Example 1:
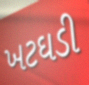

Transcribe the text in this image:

ખટઘડી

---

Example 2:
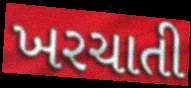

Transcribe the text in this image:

ખરચાતી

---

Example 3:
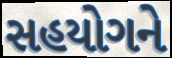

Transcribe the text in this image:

સહયોગને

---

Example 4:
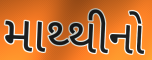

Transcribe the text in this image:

માથ્થીનો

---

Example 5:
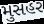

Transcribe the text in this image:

મુસહર